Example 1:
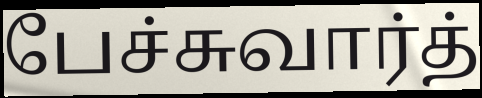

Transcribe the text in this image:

பேச்சுவார்த்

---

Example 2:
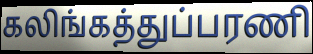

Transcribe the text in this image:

கலிங்கத்துப்பரணி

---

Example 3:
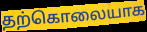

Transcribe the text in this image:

தற்கொலையாக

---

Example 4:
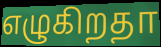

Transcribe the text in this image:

எழுகிறதா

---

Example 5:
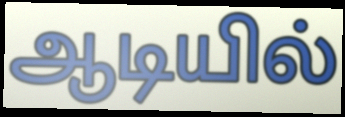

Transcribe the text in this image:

ஆடியில்